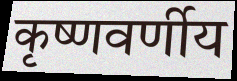
कृष्णवर्णीय